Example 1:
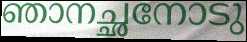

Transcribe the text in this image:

ഞാനച്ഛനോടു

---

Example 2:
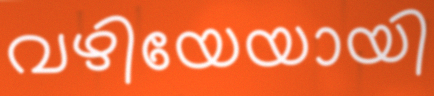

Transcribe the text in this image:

വഴിയേയായി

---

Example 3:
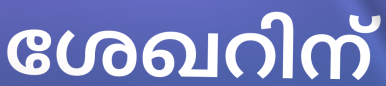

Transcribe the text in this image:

ശേഖറിന്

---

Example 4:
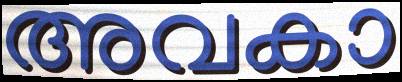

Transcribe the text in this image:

അവകാ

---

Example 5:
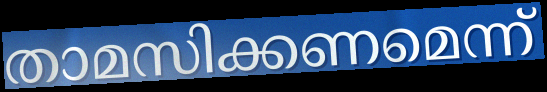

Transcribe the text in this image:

താമസിക്കണമെന്ന്